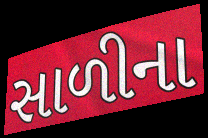
સાળીના